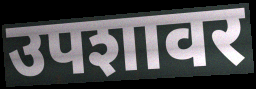
उपशावर